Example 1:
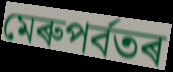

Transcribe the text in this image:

মেৰুপৰ্বতৰ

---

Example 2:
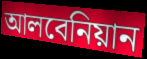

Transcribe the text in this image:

আলবেনিয়ান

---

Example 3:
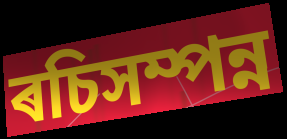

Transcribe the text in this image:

ৰচিসম্পন্ন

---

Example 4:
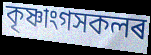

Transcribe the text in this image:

কৃষ্ণাংগসকলৰ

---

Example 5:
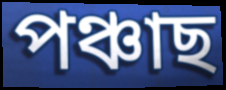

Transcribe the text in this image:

পঞ্চাছ